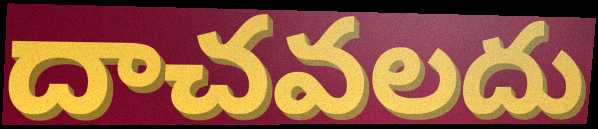
దాచవలదు